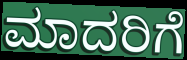
ಮಾದರಿಗೆ